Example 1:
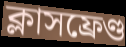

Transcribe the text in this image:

ক্লাসফ্রেণ্ড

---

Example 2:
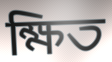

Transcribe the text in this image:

ক্ষিত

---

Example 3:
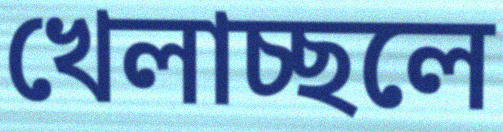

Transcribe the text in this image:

খেলাচ্ছলে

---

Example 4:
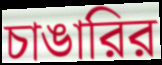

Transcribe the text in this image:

চাঙারির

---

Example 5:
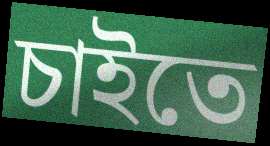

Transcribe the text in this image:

চাইতে